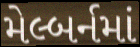
મેલ્બર્નમાં